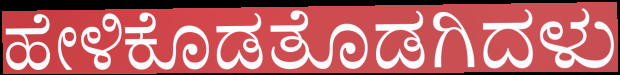
ಹೇಳಿಕೊಡತೊಡಗಿದಳು